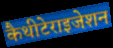
कैथीटेराइजेशन